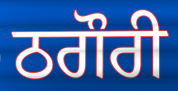
ਠਗੌਰੀ